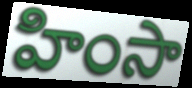
హింసా